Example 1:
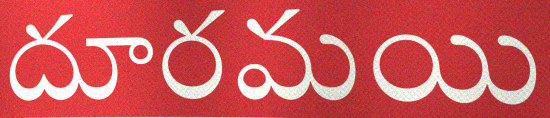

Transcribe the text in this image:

దూరమయి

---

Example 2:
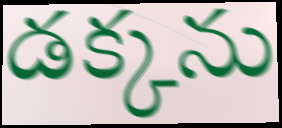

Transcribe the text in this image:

డక్కను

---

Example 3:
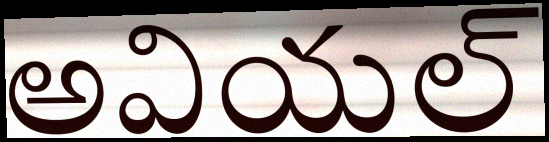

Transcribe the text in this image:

అవియల్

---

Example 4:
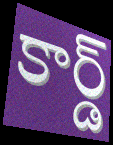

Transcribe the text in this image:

కార్డ్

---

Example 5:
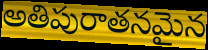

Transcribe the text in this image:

అతిపురాతనమైన